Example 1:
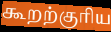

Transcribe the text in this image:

கூறற்குரிய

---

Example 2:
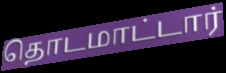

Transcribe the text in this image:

தொடமாட்டார்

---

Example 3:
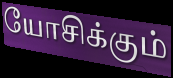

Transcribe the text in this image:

யோசிக்கும்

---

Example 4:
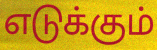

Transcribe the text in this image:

எடுக்கும்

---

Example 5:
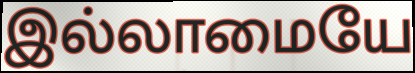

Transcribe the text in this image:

இல்லாமையே